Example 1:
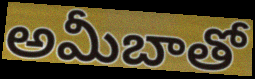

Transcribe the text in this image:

అమీబాతో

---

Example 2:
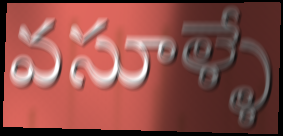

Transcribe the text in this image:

వసూళ్ళే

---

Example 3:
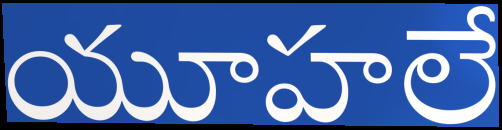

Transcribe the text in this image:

యూహలే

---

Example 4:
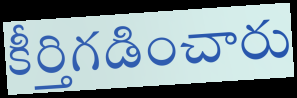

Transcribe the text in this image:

కీర్తిగడించారు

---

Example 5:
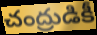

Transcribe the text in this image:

చంద్రుడికీ